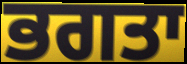
ਭਗਤਾ